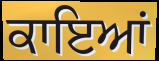
ਕਾਇਆਂ